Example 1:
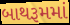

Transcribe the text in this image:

બાથરૂમમાં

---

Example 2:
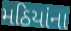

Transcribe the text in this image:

મઠિયાંના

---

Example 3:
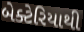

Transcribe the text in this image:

બેક્ટેરિયાથી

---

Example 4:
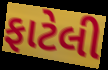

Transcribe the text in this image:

ફાટેલી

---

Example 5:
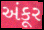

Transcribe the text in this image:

અંકૂર